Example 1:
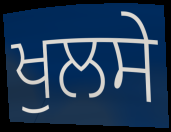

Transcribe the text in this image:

ਖੁਲਸੇ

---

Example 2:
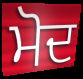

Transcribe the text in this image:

ਮੋਦ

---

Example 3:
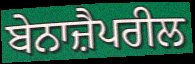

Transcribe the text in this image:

ਬੇਨਾਜ਼ੈਪਰੀਲ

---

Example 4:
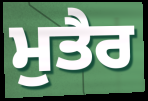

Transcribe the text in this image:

ਮੁਤੈਰ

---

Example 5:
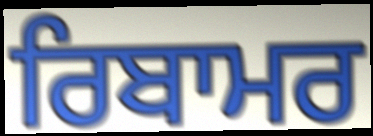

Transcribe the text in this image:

ਰਿਬਾਮਰ